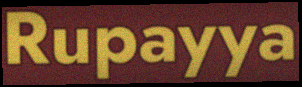
Rupayya